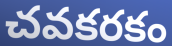
చవకరకం